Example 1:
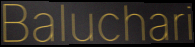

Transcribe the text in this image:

Baluchari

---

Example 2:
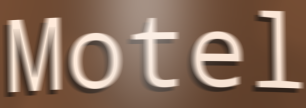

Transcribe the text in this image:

Motel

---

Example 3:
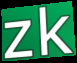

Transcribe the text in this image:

zk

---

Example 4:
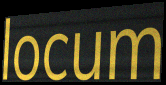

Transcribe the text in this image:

locum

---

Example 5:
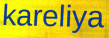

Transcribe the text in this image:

kareliya